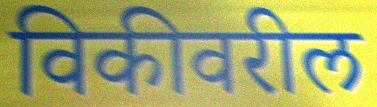
विकीवरील